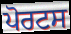
ਪੋਰਟਸ